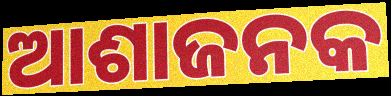
ଆଶାଜନକ